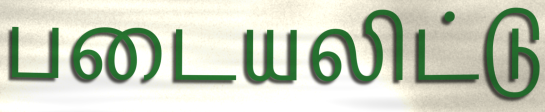
படையலிட்டு